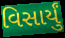
વિસાર્યું